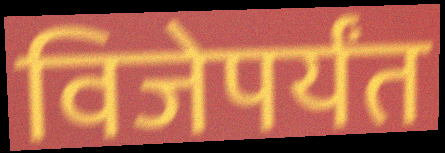
विजेपर्यंत